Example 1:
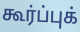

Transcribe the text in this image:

கூர்ப்புக்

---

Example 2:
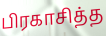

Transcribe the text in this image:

பிரகாசித்த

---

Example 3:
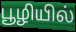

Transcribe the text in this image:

பூழியில்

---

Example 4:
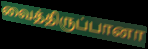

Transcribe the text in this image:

வைத்திருப்பானா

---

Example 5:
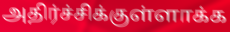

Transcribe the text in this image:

அதிர்ச்சிக்குள்ளாக்க